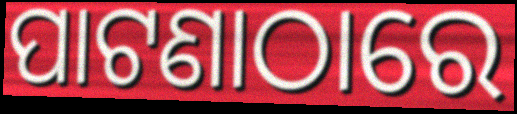
ପାଟଣାଠାରେ